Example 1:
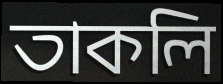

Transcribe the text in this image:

তাকলি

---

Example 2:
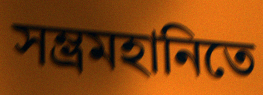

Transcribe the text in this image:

সম্ভ্রমহানিতে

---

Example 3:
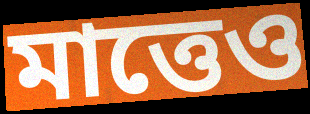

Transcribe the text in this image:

মাত্তেও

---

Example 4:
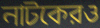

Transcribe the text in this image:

নাটকেরও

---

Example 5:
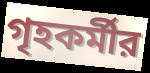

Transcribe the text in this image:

গৃহকর্মীর